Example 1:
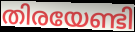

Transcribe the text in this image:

തിരയേണ്ടി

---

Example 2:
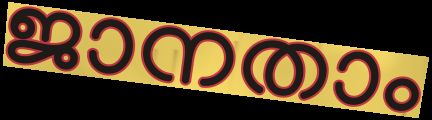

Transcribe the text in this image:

ജാനതാം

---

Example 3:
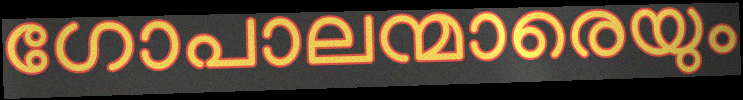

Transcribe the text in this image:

ഗോപാലന്മാരെയും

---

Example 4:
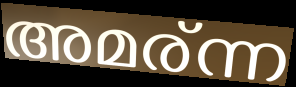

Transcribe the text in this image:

അമര്ന്ന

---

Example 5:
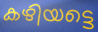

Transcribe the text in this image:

കഴിയട്ടെ